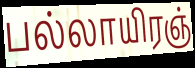
பல்லாயிரஞ்